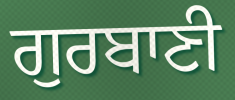
ਗੁਰਬਾਣੀ